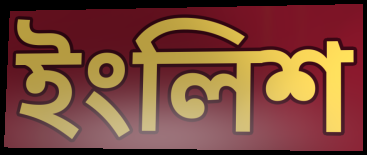
ইংলিশ